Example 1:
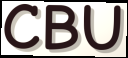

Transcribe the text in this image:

CBU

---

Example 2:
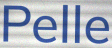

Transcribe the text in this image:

Pelle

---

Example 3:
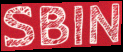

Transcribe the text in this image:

SBIN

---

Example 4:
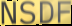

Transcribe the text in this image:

NSDF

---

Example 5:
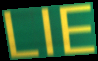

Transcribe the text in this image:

LIE